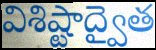
విశిష్టాద్వైత